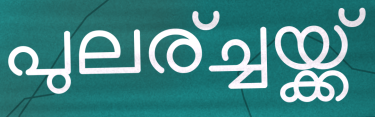
പുലര്ച്ചയ്ക്ക്